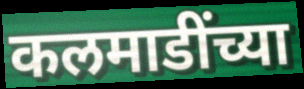
कलमाडींच्या